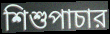
শিশুপাচার